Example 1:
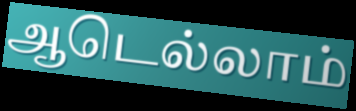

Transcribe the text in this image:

ஆடெல்லாம்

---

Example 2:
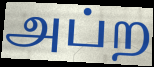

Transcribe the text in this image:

அப்ற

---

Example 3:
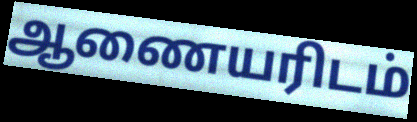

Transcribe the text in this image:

ஆணையரிடம்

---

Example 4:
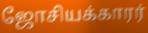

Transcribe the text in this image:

ஜோசியக்காரர்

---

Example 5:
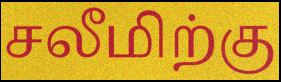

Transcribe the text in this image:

சலீமிற்கு